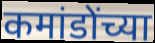
कमांडोंच्या